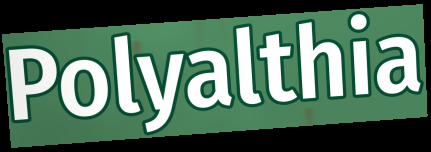
Polyalthia